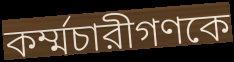
কর্ম্মচারীগণকে